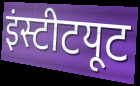
इंस्टीटयूट